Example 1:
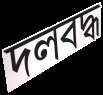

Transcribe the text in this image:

দলবদ্ধ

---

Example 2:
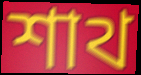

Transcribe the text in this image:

শাথ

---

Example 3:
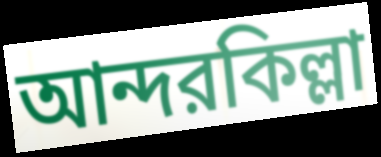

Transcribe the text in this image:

আন্দরকিল্লা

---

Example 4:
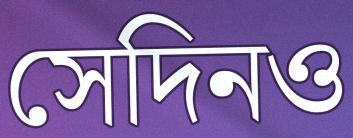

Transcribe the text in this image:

সেদিনও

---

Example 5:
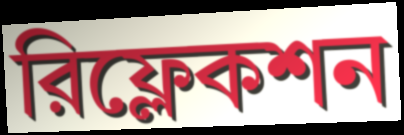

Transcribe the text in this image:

রিফ্লেকশন